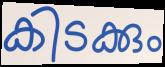
കിടക്കും